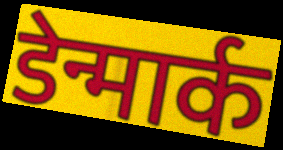
डेन्मार्क